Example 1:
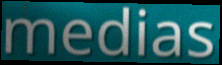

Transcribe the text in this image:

medias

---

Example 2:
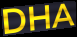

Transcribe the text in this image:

DHA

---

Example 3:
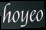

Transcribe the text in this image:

hoyeo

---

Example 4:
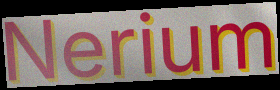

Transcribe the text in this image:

Nerium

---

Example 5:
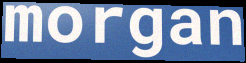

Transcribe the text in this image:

morgan